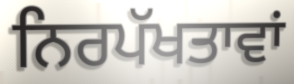
ਨਿਰਪੱਖਤਾਵਾਂ